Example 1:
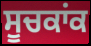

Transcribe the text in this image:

ਸੂਚਕਾਂਕ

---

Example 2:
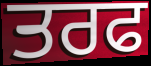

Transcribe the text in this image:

ਤਰਫ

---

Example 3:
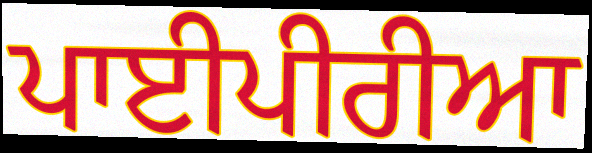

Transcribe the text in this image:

ਪਾਈਪੀਰੀਆ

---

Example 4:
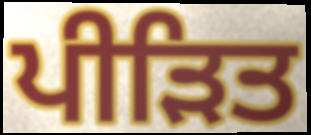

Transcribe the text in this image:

ਪੀੜਿਤ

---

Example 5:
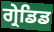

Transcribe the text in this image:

ਗ੍ਰੇਡਿਡ